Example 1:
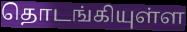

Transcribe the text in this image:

தொடங்கியுள்ள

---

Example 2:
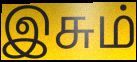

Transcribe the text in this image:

இசும்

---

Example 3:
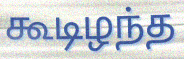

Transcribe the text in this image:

கூடிழந்த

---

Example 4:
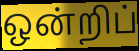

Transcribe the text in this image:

ஒன்றிப்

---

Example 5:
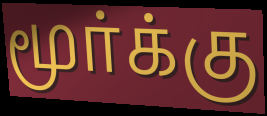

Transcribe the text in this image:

மூர்க்கு